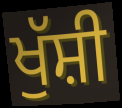
ਖੁੱਸ਼ੀ